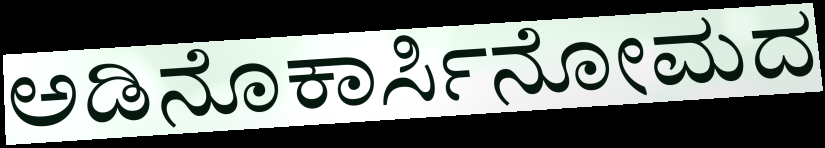
ಅಡಿನೊಕಾರ್ಸಿನೋಮದ